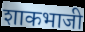
शाकभाजी